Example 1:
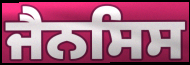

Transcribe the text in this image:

ਜੈਨਸਿਸ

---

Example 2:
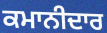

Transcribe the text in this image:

ਕਮਾਨੀਦਾਰ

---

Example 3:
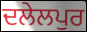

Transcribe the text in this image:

ਦਲੇਲਪੁਰ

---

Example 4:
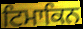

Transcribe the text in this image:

ਟਿਮਾਕਿਨ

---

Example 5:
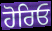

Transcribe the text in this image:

ਹੋਰਿਓ